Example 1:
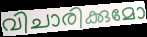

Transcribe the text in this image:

വിചാരിക്കുമോ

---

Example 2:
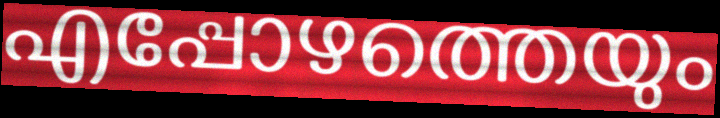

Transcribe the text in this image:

എപ്പോഴത്തെയും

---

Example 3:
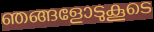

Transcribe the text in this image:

ഞങ്ങളോടുകൂടെ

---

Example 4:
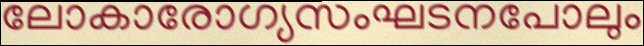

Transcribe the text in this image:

ലോകാരോഗ്യസംഘടനപോലും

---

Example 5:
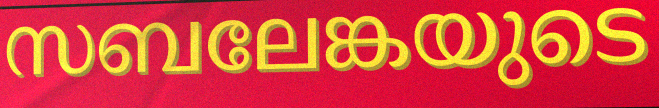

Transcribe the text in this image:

സബലേങ്കയുടെ